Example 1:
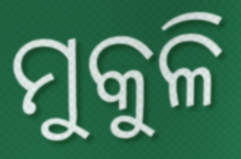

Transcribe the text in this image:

ମୁକୁଳି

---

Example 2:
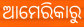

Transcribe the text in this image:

ଆମେରିକାରୁ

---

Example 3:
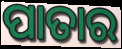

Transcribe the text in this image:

ପାତାର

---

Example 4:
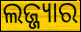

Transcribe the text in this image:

ଲଜ୍ଜ୍ୟାର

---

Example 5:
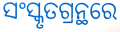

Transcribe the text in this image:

ସଂସ୍କୃତଗ୍ରନ୍ଥରେ